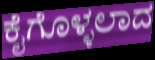
ಕೈಗೊಳ್ಳಲಾದ